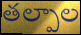
తల్పాల